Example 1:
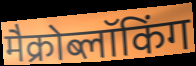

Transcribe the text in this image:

मैक्रोब्लॉकिंग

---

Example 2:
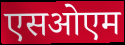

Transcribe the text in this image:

एसओएम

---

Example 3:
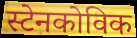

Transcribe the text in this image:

स्टेनकोविक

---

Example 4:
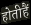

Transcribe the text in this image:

होतीहैं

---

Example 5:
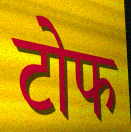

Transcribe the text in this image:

टोफ